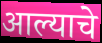
आल्याचे